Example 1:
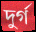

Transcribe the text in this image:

দুৰ্গ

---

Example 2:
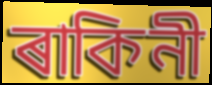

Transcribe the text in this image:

ৰাকিনী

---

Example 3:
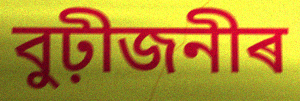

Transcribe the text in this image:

বুঢ়ীজনীৰ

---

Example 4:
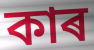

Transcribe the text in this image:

কাৰ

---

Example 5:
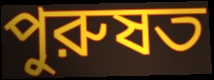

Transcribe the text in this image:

পুৰুষত